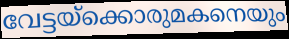
വേട്ടയ്ക്കൊരുമകനെയും